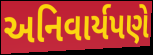
અનિવાર્યપણે